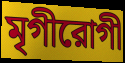
মৃগীরোগী